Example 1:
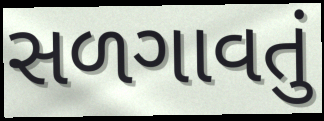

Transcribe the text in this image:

સળગાવતું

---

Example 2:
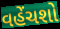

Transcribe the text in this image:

વહેંચશો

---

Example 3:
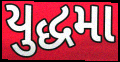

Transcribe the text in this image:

યુદ્ધમા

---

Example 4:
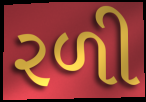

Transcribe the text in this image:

રળી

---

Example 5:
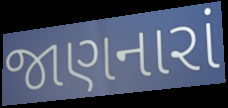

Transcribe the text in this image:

જાણનારાં